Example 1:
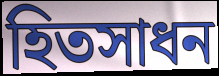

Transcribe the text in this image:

হিতসাধন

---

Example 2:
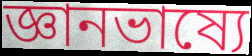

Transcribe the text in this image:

জ্ঞানভাষ্যে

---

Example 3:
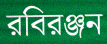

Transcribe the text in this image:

রবিরঞ্জন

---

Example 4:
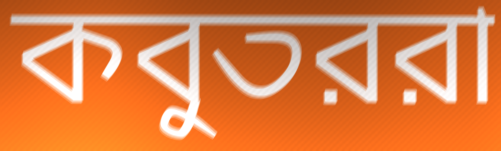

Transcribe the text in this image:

কবুতররা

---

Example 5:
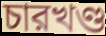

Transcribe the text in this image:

চারখণ্ড